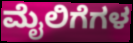
ಮೈಲಿಗೆಗಳ